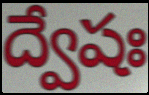
ద్వేషః